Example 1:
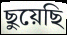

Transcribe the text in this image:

ছুয়েছি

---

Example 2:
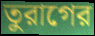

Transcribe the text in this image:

তুরাগের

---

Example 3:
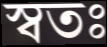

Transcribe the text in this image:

স্বতঃ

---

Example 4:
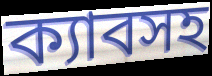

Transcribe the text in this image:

ক্যাবসহ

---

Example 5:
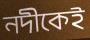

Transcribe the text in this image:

নদীকেই